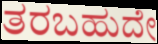
ತರಬಹುದೇ